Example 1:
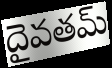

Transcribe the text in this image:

దైవతమ్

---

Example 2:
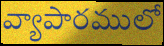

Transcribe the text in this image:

వ్యాపారములో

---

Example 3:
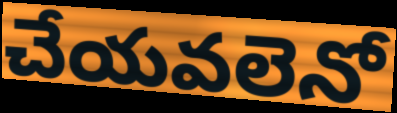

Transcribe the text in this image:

చేయవలెనో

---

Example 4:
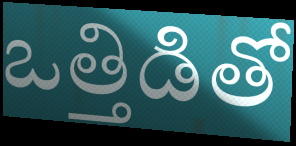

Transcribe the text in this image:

ఒత్తిడితో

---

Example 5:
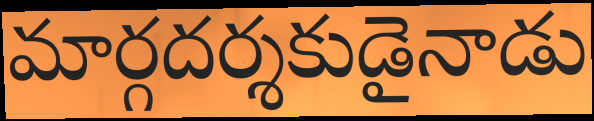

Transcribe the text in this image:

మార్గదర్శకుడైనాడు